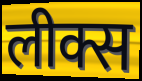
लीक्स